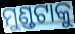
ମୁଣ୍ଡଟାକୁ